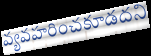
వ్యవహరించకూడదని